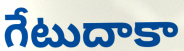
గేటుదాకా